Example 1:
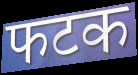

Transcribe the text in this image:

फटक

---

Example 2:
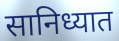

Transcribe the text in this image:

सानिध्यात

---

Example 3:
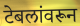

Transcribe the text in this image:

टेबलांवरून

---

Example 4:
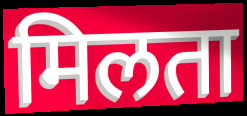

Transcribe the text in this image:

मिलता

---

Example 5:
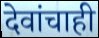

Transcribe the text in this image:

देवांचाही